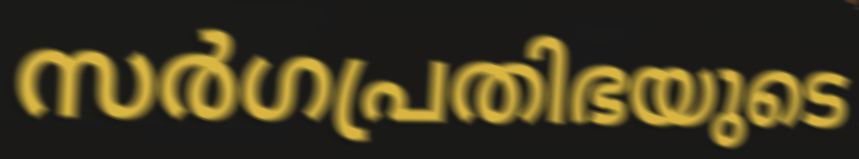
സർഗപ്രതിഭയുടെ